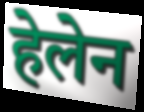
हेलेन